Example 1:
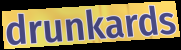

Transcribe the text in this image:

drunkards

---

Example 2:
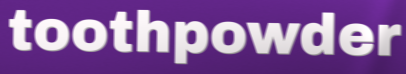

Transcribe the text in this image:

toothpowder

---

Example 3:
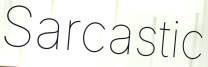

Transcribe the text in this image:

Sarcastic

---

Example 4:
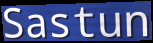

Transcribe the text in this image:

Sastun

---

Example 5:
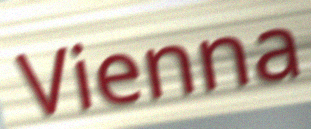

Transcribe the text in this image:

Vienna